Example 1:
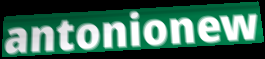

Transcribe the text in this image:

antonionew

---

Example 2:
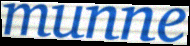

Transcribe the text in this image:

munne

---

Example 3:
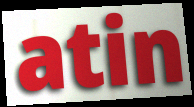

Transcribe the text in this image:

atin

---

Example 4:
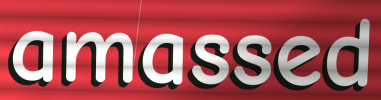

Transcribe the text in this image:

amassed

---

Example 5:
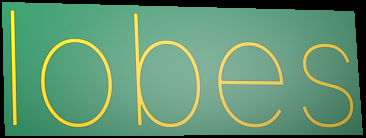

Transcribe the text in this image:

lobes